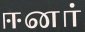
ஈனர்